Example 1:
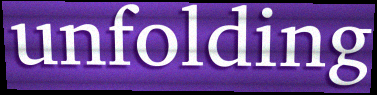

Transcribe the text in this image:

unfolding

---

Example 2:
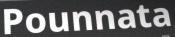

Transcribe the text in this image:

Pounnata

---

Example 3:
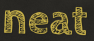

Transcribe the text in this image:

neat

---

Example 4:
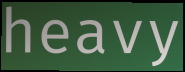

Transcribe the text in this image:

heavy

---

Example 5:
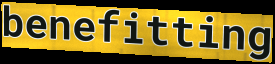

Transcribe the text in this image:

benefitting